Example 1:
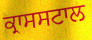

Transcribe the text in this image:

ਕ੍ਰਾਸਸਟਾਲ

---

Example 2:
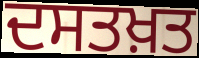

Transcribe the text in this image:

ਦਸਤਖ਼ਤ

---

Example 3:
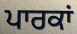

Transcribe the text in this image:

ਪਾਰਕਾਂ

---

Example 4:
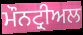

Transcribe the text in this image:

ਮੌਨਟ੍ਰੀਅਲ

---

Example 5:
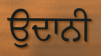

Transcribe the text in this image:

ਉਦਾਨੀ